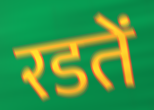
रडतें